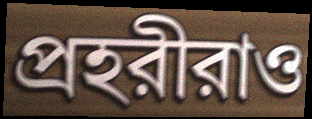
প্রহরীরাও